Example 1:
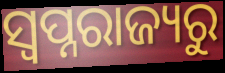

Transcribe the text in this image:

ସ୍ୱପ୍ନରାଜ୍ୟରୁ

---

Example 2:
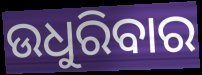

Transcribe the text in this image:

ଉଧୁରିବାର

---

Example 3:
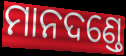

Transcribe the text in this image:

ମାନଦଣ୍ଡେ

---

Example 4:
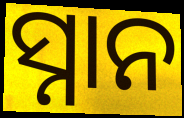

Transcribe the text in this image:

ସ୍ନାନ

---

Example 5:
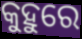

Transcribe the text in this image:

କୁହୁରେ